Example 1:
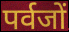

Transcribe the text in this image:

पर्वजों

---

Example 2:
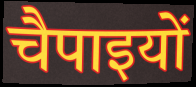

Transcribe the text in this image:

चैपाइयों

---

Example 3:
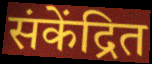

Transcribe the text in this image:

संकेंद्रित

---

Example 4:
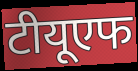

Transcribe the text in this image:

टीयूएफ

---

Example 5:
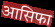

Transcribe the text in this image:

आसिफा